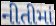
નીતીમાં